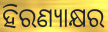
ହିରଣ୍ୟାକ୍ଷର